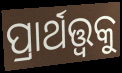
ପ୍ରାର୍ଥତ୍ତ୍ୱକୁ